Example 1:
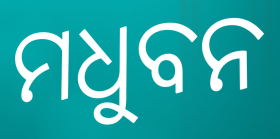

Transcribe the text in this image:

ମଧୁବନ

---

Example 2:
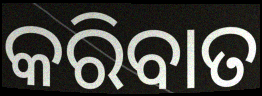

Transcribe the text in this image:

କରିବାତ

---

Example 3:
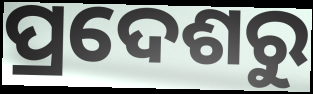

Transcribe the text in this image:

ପ୍ରଦେଶରୁ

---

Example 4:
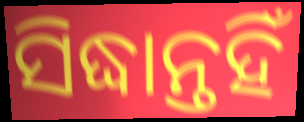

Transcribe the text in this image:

ସିଦ୍ଧାନ୍ତହିଁ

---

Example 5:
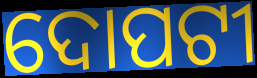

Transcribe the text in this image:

ଦୋପଟୀ